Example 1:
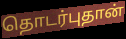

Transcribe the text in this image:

தொடர்புதான்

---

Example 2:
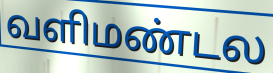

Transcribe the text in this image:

வளிமண்டல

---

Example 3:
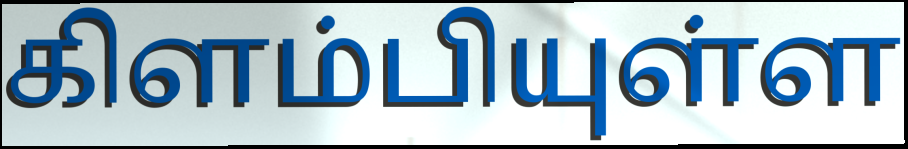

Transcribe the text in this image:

கிளம்பியுள்ள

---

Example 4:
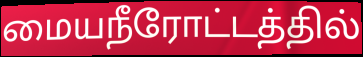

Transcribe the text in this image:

மையநீரோட்டத்தில்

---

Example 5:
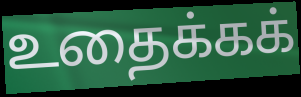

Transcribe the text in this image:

உதைக்கக்